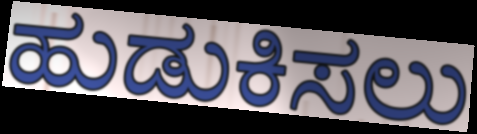
ಹುಡುಕಿಸಲು